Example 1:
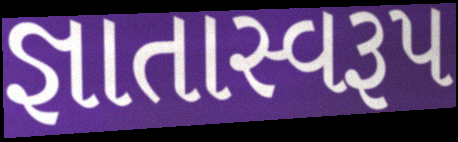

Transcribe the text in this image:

જ્ઞાતાસ્વરૂપ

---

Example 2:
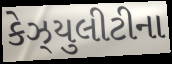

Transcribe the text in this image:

કેઝ્યુલીટીના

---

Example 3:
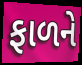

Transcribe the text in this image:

ફાળને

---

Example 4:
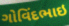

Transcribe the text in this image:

ગોવિંદભાઇ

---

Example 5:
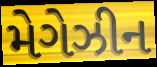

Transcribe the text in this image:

મેગેઝીન